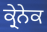
ਕ੍ਰੇਨੇਕ